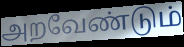
அறவேண்டும்